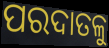
ପରଦାତଳୁ